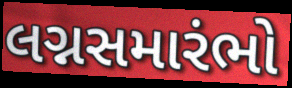
લગ્નસમારંભો